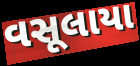
વસૂલાયા